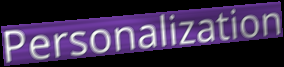
Personalization